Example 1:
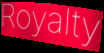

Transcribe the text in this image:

Royalty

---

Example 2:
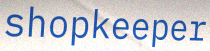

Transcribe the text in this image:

shopkeeper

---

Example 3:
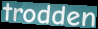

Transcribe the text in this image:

trodden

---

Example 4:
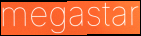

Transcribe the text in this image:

megastar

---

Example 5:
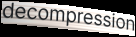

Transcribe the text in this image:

decompression